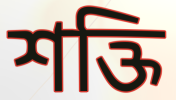
শক্তি